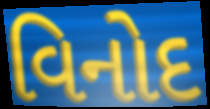
વિનોદ